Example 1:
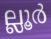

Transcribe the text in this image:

ല്ലൂർ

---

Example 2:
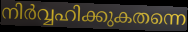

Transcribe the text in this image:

നിർവ്വഹിക്കുകതന്നെ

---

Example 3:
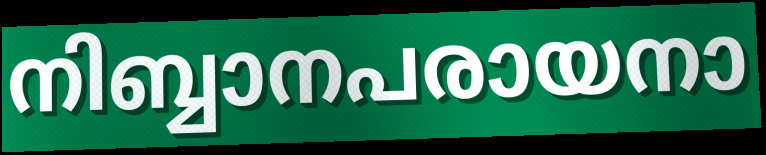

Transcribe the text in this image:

നിബ്ബാനപരായനാ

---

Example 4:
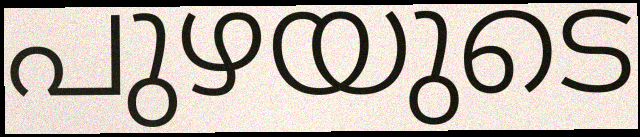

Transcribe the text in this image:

പുഴയുടെ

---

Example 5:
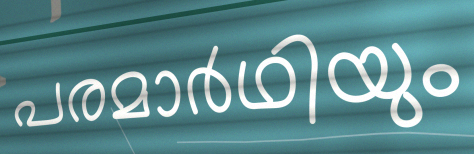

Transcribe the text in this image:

പരമാർഥിയും